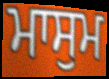
ਮਾਸੁਮ